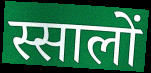
स्सालों